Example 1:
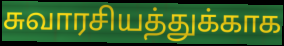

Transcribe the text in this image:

சுவாரசியத்துக்காக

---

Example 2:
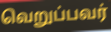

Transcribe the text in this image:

வெறுப்பவர்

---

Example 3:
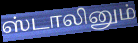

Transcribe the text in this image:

ஸ்டாலினும்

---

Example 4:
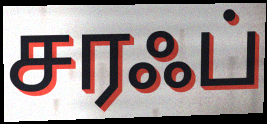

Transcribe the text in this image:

சரஃப்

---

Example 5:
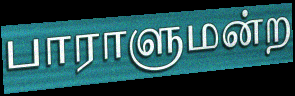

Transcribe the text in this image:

பாராளுமன்ற